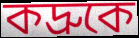
কদ্রুকে